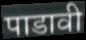
पाडावी